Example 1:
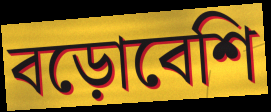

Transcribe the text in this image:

বড়োবেশি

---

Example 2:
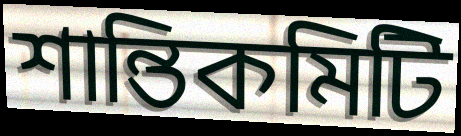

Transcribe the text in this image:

শান্তিকমিটি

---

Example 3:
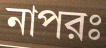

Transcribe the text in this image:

নাপরঃ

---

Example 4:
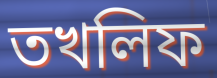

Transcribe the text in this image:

তখলিফ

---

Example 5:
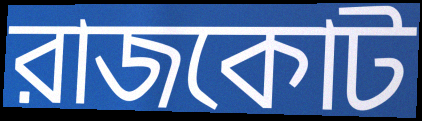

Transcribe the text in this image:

রাজকোট